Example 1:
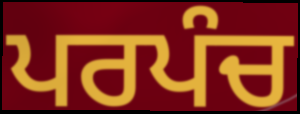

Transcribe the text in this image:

ਪਰਪੰਚ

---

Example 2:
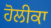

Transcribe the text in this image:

ਹੋਲੀਕਾ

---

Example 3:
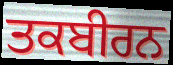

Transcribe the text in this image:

ਤਕਬੀਰਨ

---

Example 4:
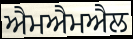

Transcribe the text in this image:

ਐਮਐਮਐਲ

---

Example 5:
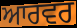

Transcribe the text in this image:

ਆਰਵਰ